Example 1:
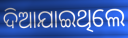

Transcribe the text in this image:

ଦିଆଯାଇଥିଲେ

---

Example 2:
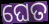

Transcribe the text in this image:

ଘେତ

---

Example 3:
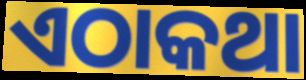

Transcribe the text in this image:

ଏଠାକଥା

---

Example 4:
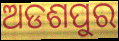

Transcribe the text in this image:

ଅଡଶପୁର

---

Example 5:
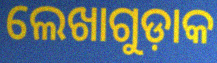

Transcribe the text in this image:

ଲେଖାଗୁଡ଼ାକ